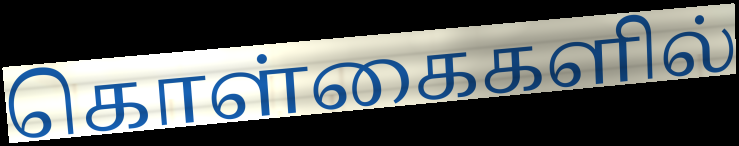
கொள்கைகளில்